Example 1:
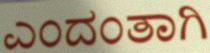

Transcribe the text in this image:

ಎಂದಂತಾಗಿ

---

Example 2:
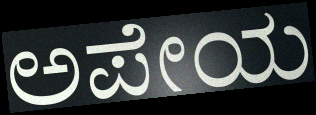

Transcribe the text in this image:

ಅಪೇಯ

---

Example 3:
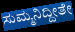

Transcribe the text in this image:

ಸುಮ್ಮನಿದ್ದೀತೇ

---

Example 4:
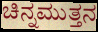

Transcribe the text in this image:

ಚಿನ್ನಮುತ್ತನ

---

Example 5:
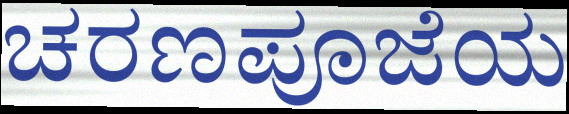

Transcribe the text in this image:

ಚರಣಪೂಜೆಯ